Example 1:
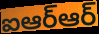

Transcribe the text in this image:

ఐఆర్ఆర్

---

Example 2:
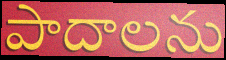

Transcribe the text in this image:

పాదాలను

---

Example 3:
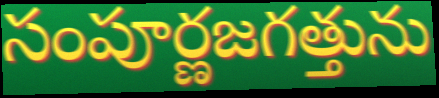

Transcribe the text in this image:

సంపూర్ణజగత్తును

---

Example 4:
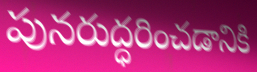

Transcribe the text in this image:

పునరుద్ధరించడానికి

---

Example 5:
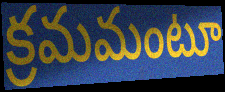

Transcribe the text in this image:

క్రమమంటూ